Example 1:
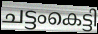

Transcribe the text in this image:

ചട്ടംകെട്ടി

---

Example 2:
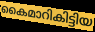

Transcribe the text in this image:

കൈമാറികിട്ടിയ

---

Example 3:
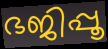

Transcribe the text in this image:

ഭജിപ്പൂ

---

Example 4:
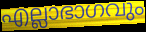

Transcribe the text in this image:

എല്ലാഭാഗവും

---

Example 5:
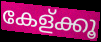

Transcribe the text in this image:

കേള്ക്കൂ